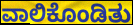
ವಾಲಿಕೊಂಡಿತು